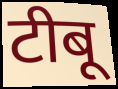
टीबू